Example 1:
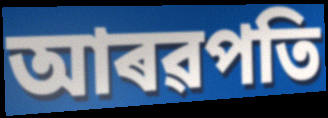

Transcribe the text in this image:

আৰৱপতি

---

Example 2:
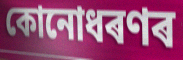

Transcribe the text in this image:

কোনোধৰণৰ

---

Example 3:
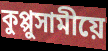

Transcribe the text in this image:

কুপ্পুসামীয়ে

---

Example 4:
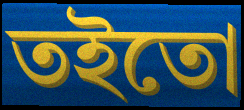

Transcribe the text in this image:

তইতো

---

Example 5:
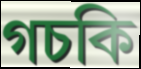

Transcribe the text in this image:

গচকি